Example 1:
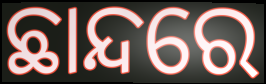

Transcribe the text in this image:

ଛାନ୍ଦରେ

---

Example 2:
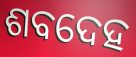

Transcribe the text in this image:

ଶବଦେହ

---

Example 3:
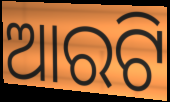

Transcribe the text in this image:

ଆରଟି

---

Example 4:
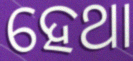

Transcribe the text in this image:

ହେଥା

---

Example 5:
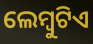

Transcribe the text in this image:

ଲେମ୍ବୁଟିଏ